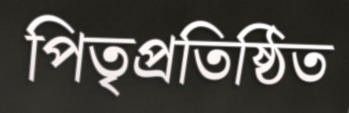
পিতৃপ্রতিষ্ঠিত